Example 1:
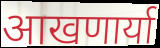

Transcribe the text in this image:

आखणार्या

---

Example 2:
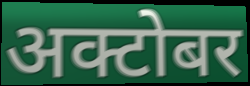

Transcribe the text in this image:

अक्टोबर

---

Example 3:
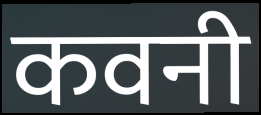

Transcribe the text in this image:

कवनी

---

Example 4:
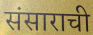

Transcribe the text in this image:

संसाराची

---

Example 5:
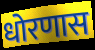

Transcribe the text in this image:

धोरणास